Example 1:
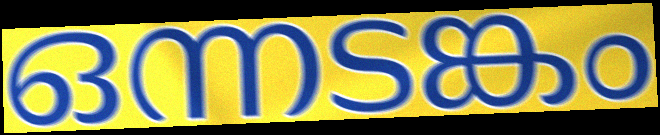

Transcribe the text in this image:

ഒന്നടങ്കം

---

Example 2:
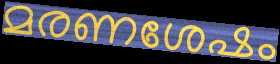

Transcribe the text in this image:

മരണശേഷം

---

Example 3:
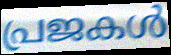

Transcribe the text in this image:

പ്രജകൾ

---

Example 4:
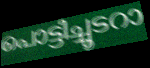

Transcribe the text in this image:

പൊട്ടിച്ചൂടറാ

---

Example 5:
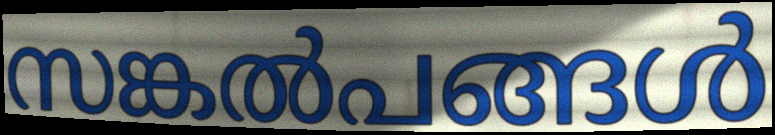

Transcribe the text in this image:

സങ്കൽപങ്ങൾ